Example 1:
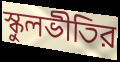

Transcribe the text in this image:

স্কুলভীতির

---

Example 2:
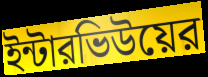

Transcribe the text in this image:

ইন্টারভিউয়ের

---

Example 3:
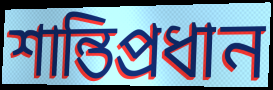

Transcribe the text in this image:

শান্তিপ্রধান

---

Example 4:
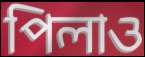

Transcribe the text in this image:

পিলাও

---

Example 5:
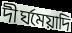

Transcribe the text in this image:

দীর্ঘমেয়াদি